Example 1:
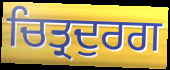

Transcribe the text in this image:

ਚਿਤ੍ਰਦੁਰਗ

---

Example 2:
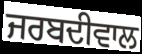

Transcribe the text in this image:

ਜਰਬਦੀਵਾਲ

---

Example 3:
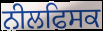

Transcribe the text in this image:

ਨੀਲਫਿਸਕ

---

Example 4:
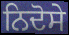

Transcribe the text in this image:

ਨਿਦੋਸੇ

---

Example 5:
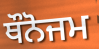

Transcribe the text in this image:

ਥੌਨੋਜਮ